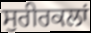
ਸੁਰੀਰਕਲਾਂ